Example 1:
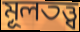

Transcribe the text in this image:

মূলতত্ত্ব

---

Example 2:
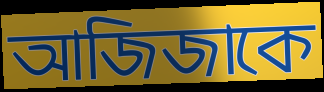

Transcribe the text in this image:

আজিজাকে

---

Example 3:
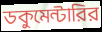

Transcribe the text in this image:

ডকুমেন্টারির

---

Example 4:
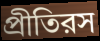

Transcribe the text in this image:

প্রীতিরস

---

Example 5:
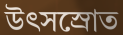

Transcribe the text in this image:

উৎসস্রোত